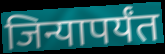
जिन्यापर्यंत